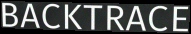
BACKTRACE